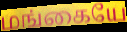
மங்கையே